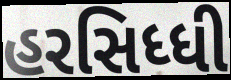
હરસિધ્ધી